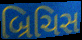
બ્રિચિસ